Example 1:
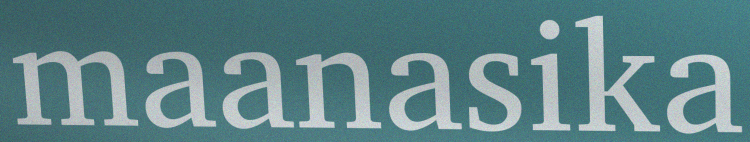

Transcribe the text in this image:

maanasika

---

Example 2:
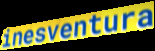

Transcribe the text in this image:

inesventura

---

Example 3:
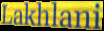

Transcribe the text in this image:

Lakhlani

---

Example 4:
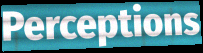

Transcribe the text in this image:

Perceptions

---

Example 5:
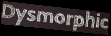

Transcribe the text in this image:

Dysmorphic